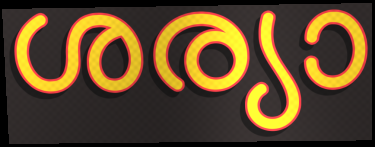
ശര്യാ